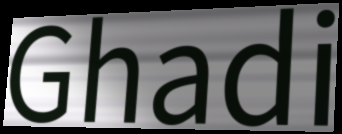
Ghadi